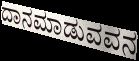
ದಾನಮಾಡುವವನ